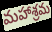
మహాశ్రమ